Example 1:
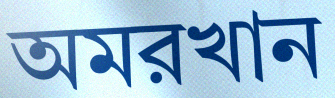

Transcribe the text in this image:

অমরখান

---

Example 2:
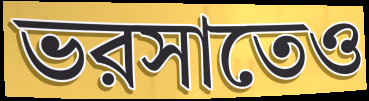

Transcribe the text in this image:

ভরসাতেও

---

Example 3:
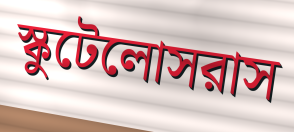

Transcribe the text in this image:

স্কুটেলোসরাস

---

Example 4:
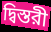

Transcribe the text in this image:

দ্বিস্তরী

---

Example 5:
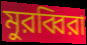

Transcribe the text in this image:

মুরব্বিরা